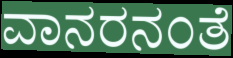
ವಾನರನಂತೆ